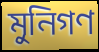
মুনিগণ